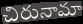
చిరునామా